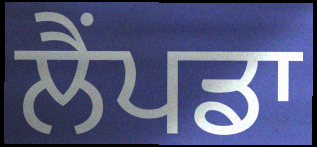
ਲੈਂਪਡਾ